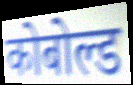
कोबोल्ड